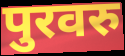
पुरवरु